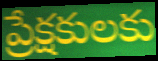
ప్రేక్షకులకు